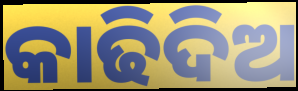
କାଢିଦିଅ